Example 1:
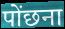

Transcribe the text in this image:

पोंछना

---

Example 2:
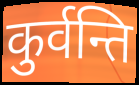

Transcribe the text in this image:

कुर्वन्ति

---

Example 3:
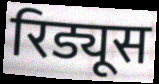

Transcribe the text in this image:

रिड्यूस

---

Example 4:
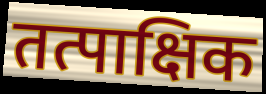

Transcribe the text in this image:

तत्पाक्षिक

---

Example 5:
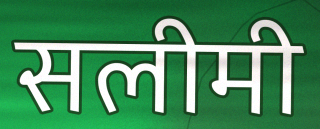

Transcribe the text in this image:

सलीमी